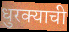
धुरक्याची